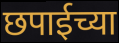
छपाईच्या